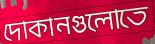
দোকানগুলোতে